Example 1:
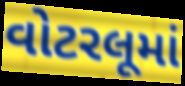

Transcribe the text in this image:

વોટરલૂમાં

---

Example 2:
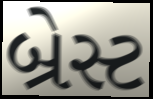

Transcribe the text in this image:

બ્રેસ્ટ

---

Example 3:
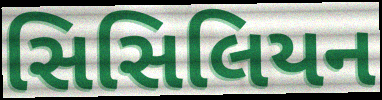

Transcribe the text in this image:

સિસિલિયન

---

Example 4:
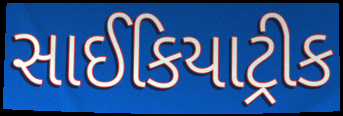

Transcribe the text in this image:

સાઈકિયાટ્રીક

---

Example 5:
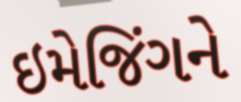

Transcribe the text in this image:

ઇમેજિંગને